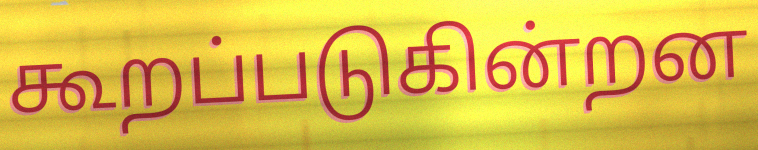
கூறப்படுகின்றன